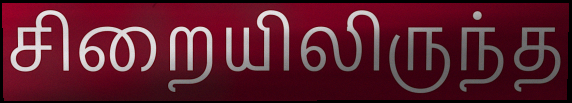
சிறையிலிருந்த